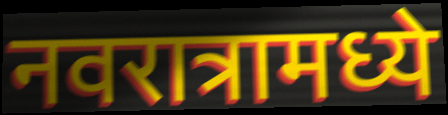
नवरात्रामध्ये